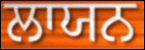
ਲਾਯਨ